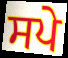
ਸਪੇ